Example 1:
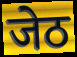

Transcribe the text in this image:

जेठ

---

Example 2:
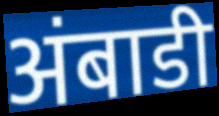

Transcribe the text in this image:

अंबाडी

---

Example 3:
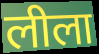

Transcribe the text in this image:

लीला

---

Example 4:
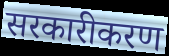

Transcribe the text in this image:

सरकारीकरण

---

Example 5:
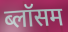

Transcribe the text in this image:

ब्लॉसम